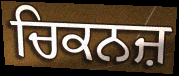
ਚਿਕਨਜ਼